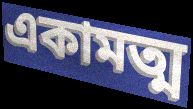
একামত্ম